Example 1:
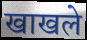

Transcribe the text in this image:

खाखले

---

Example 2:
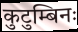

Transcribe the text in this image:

कुटुम्बिनः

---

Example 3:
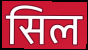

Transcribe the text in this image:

सिल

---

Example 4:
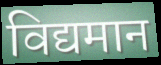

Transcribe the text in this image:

विद्यमान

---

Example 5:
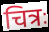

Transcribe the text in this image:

चित्रः